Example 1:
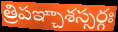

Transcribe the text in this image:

త్రిపఞ్చాశస్సర్గః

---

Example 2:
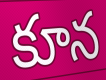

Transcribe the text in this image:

కూన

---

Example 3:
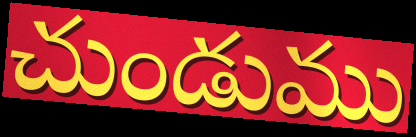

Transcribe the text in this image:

చుండుము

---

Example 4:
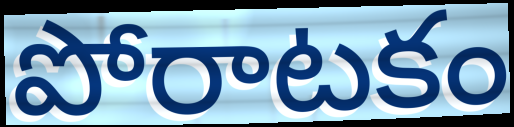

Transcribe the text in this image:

పోరాటకం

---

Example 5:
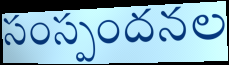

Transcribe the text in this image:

సంస్పందనల